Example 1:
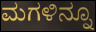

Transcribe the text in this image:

ಮಗಳಿನ್ನೂ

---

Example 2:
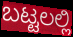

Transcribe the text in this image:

ಬಟ್ಟಲಲ್ಲಿ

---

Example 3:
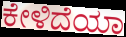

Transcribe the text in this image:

ಕೇಳಿದೆಯಾ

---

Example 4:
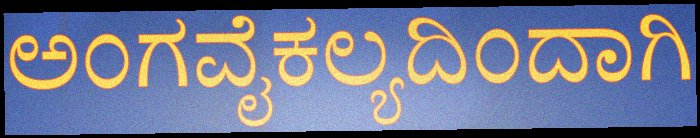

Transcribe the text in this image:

ಅಂಗವೈಕಲ್ಯದಿಂದಾಗಿ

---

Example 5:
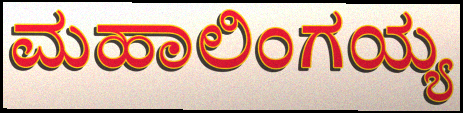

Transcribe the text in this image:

ಮಹಾಲಿಂಗಯ್ಯ